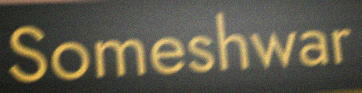
Someshwar